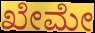
ಖೇಮೇ